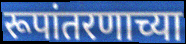
रूपांतरणाच्या